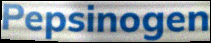
Pepsinogen